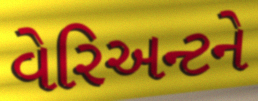
વેરિઅન્ટને